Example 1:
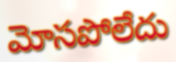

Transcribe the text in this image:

మోసపోలేదు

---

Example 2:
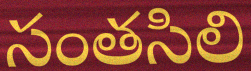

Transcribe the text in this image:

సంతసిలి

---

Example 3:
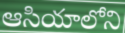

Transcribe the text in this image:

ఆసియాలోని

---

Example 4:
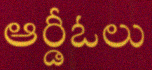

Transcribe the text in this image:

ఆర్డీఓలు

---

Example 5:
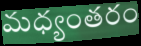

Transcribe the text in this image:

మధ్యంతరం